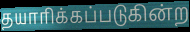
தயாரிக்கப்படுகின்ற